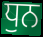
ਧੁਨ